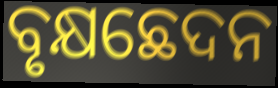
ବୃକ୍ଷଛେଦନ